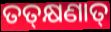
ତତ୍‍କ୍ଷଣାତ୍